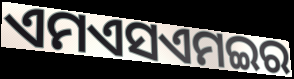
ଏମଏସଏମଇର